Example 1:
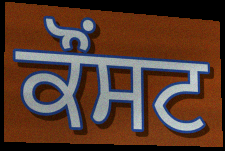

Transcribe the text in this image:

ਕੌਂਸਟ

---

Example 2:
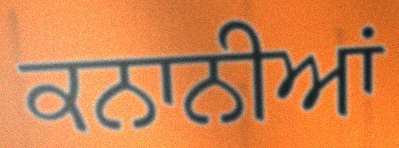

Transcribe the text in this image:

ਕਨਾਨੀਆਂ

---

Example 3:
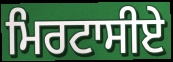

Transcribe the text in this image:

ਮਿਰਟਾਸੀਏ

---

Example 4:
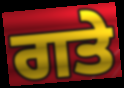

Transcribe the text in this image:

ਗਤੇ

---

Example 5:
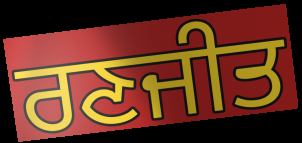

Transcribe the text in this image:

ਰਣਜੀਤ